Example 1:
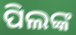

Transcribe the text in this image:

ପିଲଙ୍କ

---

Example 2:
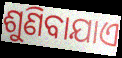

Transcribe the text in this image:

ଶୁଣିବାଯାଏ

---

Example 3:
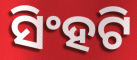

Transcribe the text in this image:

ସିଂହଟି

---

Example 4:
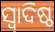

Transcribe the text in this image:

ସ୍ୱାଦିଷ୍ଠ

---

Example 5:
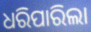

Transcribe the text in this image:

ଧରିପାରିଲା